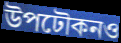
উপঢৌকনও